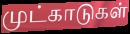
முட்காடுகள்